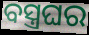
ବସ୍ତ୍ରଘର